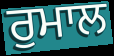
ਰੁਮਾਲ